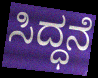
ಸಿದ್ಧನೆ